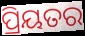
ପ୍ରିୟତର